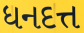
ધનદત્ત